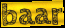
baar